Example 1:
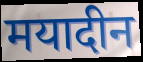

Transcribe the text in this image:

मयादीन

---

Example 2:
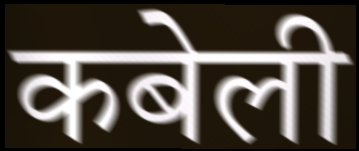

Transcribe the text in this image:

कबेली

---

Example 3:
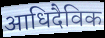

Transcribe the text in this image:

आधिदैविक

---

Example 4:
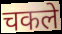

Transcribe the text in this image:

चकले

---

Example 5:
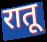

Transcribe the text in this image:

रातू